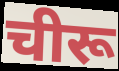
चीरू